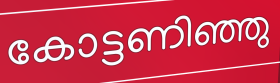
കോട്ടണിഞ്ഞു